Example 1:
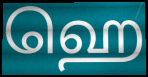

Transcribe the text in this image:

ஹெ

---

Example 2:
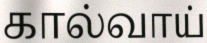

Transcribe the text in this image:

கால்வாய்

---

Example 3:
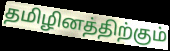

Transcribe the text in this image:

தமிழினத்திற்கும்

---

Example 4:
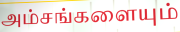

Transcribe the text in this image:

அம்சங்களையும்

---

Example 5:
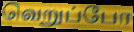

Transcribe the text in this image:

வெறுப்போ